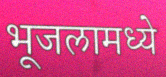
भूजलामध्ये